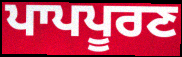
ਪਾਪਪੂਰਣ